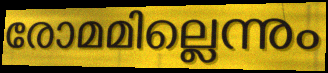
രോമമില്ലെന്നും